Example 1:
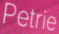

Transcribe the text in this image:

Petrie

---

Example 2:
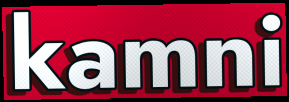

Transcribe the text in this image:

kamni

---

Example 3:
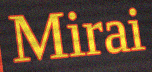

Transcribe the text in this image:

Mirai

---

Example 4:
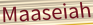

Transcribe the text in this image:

Maaseiah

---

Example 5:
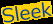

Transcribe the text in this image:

Sleek